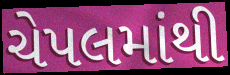
ચેપલમાંથી